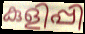
കുളിപ്പി